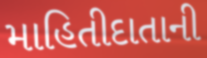
માહિતીદાતાની